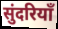
सुंदरियाँ